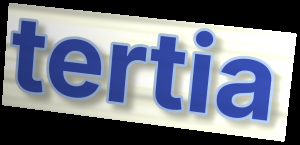
tertia